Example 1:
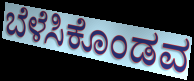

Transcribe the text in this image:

ಬೆಳೆಸಿಕೊಂಡವ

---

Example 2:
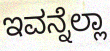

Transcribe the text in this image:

ಇವನ್ನೆಲ್ಲಾ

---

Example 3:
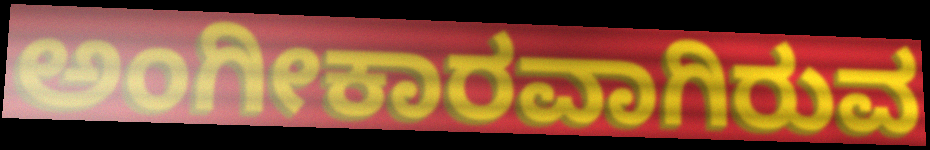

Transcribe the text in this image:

ಅಂಗೀಕಾರವಾಗಿರುವ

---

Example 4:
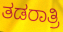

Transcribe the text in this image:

ತಡರಾತ್ರಿ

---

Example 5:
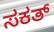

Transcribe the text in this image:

ಸಕತ್